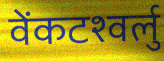
वेंकटश्वर्लु